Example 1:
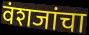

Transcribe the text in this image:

वंशजांचा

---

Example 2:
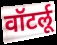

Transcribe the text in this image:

वॉटर्लू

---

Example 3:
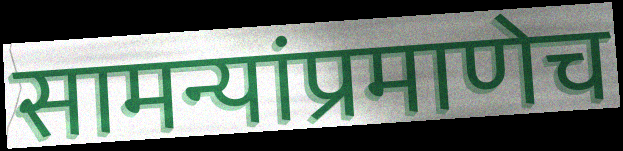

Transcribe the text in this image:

सामन्यांप्रमाणेच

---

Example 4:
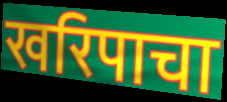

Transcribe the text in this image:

खरिपाचा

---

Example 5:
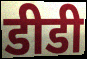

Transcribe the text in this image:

डीडी